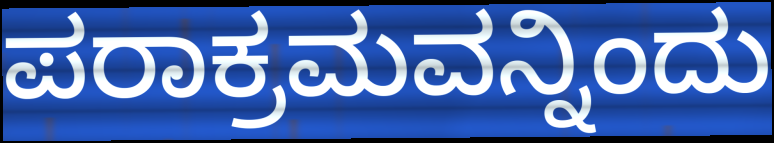
ಪರಾಕ್ರಮವನ್ನಿಂದು